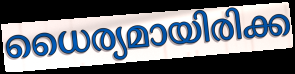
ധൈര്യമായിരിക്ക